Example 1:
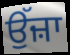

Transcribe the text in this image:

ਉੱਜ਼ਾ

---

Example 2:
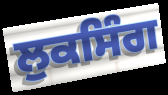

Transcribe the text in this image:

ਲੁਕਸਿੰਗ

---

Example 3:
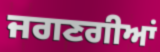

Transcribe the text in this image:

ਜਗਣਗੀਆਂ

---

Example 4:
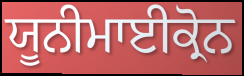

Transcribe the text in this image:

ਯੂਨੀਮਾਈਕ੍ਰੋਨ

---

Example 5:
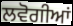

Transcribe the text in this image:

ਲਵੋਗੀਆਂ